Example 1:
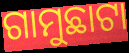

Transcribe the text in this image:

ଗାମୁଛାଟା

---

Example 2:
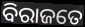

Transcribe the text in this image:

ବିରାଜତେ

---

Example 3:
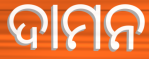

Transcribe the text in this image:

ଦାମନ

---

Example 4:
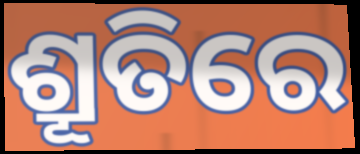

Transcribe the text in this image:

ଶ୍ରୂତିରେ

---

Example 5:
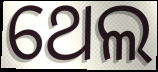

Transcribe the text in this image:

ଥେଲ